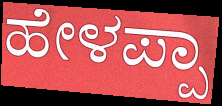
ಹೇಳಪ್ಪಾ